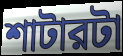
শাটারটা